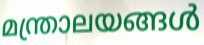
മന്ത്രാലയങ്ങൾ